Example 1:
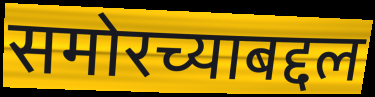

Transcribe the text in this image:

समोरच्याबद्दल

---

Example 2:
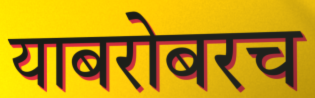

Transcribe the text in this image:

याबरोबरच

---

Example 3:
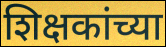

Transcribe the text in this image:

शिक्षकांच्या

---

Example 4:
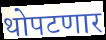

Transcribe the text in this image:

थोपटणार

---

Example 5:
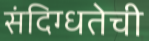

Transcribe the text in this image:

संदिग्धतेची